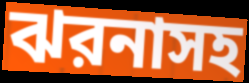
ঝরনাসহ